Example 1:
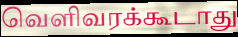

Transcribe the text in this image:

வெளிவரக்கூடாது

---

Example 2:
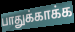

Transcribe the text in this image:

பாதுக்காக்க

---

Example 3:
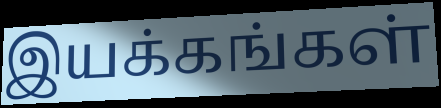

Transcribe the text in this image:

இயக்கங்கள்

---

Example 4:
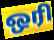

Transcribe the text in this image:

ஒரி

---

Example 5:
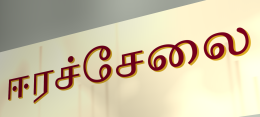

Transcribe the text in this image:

ஈரச்சேலை